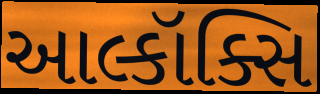
આલ્કૉક્સિ